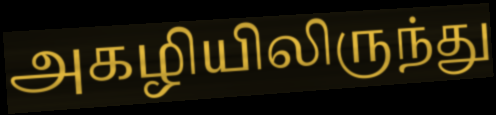
அகழியிலிருந்து